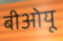
बीओयू